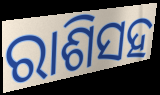
ରାଶିସହ